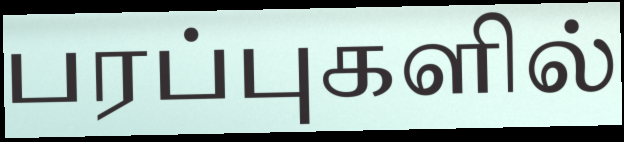
பரப்புகளில்